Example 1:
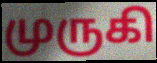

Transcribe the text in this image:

முருகி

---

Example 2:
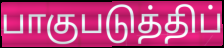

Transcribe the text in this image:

பாகுபடுத்திப்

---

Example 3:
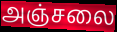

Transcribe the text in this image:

அஞ்சலை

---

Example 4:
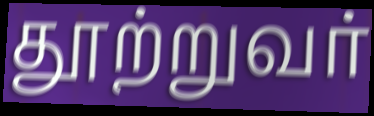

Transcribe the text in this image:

தூற்றுவர்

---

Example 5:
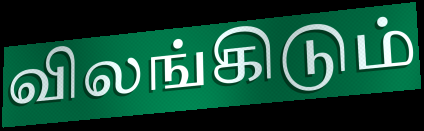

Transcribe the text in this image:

விலங்கிடும்